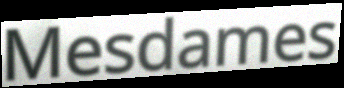
Mesdames